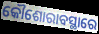
କୌଶୋରାବସ୍ଥାରେ